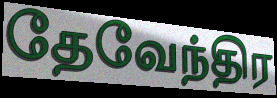
தேவேந்திர